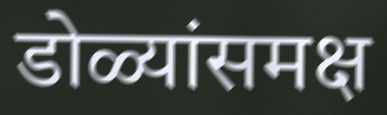
डोळ्यांसमक्ष